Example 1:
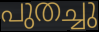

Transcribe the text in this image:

പുതച്ചു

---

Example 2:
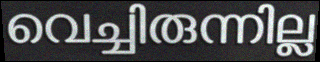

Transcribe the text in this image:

വെച്ചിരുന്നില്ല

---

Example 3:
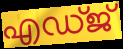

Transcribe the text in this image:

എഡ്ജ്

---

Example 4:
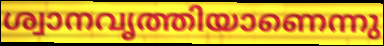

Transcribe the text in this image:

ശ്വാനവൃത്തിയാണെന്നു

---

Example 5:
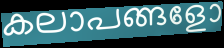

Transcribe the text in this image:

കലാപങ്ങളോ